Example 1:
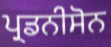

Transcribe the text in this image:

ਪ੍ਰਡਨੀਸੋਨ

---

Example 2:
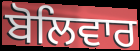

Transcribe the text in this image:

ਬੋਲਿਵਾਰ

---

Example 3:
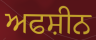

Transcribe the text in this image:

ਅਫਸ਼ੀਨ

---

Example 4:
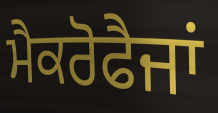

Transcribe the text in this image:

ਮੈਕਰੋਫੈਜਾਂ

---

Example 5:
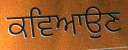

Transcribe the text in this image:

ਕਵਿਆਉਣ